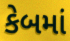
કેબમાં